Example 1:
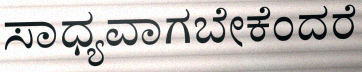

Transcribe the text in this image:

ಸಾಧ್ಯವಾಗಬೇಕೆಂದರೆ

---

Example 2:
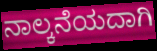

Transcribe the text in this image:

ನಾಲ್ಕನೆಯದಾಗಿ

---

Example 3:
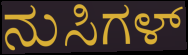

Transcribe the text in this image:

ನುಸಿಗಳ್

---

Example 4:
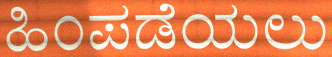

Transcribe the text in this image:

ಹಿಂಪಡೆಯಲು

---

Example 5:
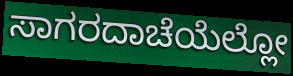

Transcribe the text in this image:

ಸಾಗರದಾಚೆಯೆಲ್ಲೋ